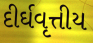
દીર્ઘવૃત્તીય